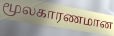
மூலகாரணமான